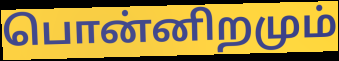
பொன்னிறமும்